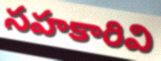
సహకారివి